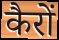
कैरों